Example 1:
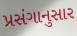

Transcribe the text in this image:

પ્રસંગાનુસાર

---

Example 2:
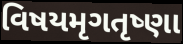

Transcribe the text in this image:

વિષયમૃગતૃષ્ણા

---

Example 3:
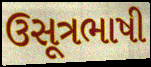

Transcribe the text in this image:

ઉસૂત્રભાષી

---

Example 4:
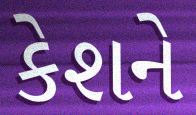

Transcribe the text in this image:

કેશને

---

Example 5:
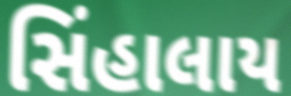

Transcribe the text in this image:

સિંહાલાય